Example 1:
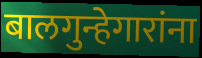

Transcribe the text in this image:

बालगुन्हेगारांना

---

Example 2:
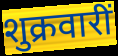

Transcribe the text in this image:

शुक्रवारीं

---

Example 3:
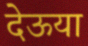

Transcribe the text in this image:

देऊया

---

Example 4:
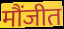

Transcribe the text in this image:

मौंजीत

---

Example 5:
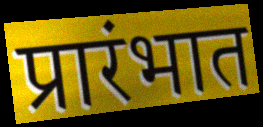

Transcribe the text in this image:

प्रारंभात